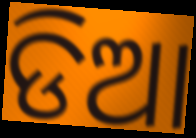
ଡିଆ